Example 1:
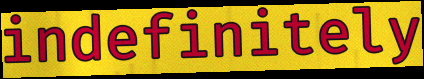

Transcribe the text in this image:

indefinitely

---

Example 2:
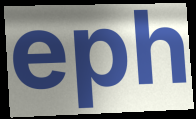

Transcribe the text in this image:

eph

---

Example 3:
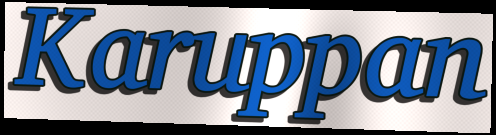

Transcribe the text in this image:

Karuppan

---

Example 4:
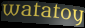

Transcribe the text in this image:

watatoy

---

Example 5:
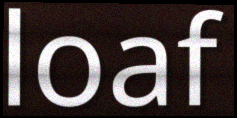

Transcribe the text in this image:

loaf